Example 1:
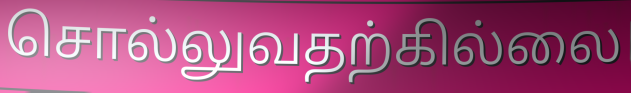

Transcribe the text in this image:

சொல்லுவதற்கில்லை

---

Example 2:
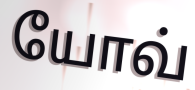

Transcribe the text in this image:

யோவ்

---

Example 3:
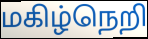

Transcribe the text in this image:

மகிழ்நெறி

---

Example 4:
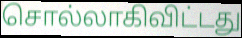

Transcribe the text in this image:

சொல்லாகிவிட்டது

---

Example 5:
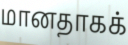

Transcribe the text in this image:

மானதாகக்